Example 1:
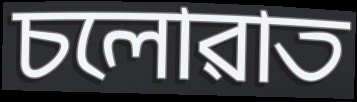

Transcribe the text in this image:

চলোৱাত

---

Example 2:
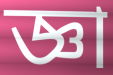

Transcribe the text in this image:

জ্ঞা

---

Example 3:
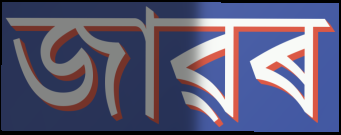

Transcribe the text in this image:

জাৱৰ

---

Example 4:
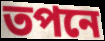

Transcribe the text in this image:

তপনে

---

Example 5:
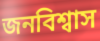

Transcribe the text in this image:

জনবিশ্বাস